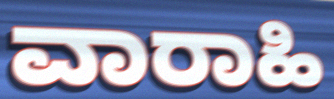
ವಾರಾಹಿ